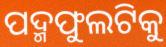
ପଦ୍ମଫୁଲଟିକୁ